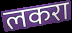
लकरा